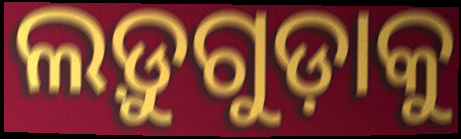
ଲଡ଼ୁଗୁଡ଼ାକୁ